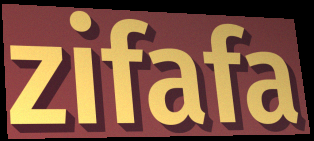
zifafa